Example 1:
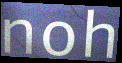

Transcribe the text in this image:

noh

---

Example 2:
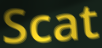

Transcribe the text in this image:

Scat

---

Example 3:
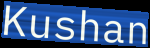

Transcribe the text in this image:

Kushan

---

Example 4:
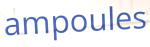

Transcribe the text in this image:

ampoules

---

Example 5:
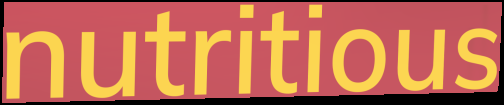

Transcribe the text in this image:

nutritious